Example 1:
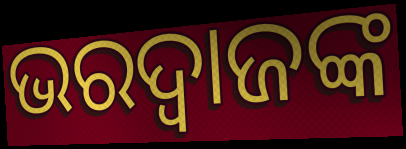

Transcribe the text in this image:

ଭରଦ୍ବାଜଙ୍କ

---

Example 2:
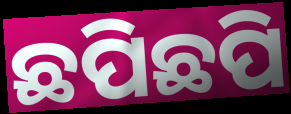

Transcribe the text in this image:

ଛପିଛପି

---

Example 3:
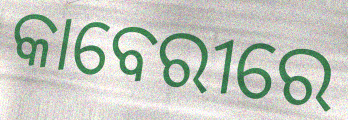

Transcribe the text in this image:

କାବେରୀରେ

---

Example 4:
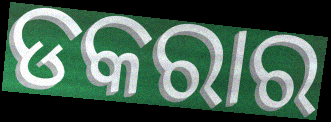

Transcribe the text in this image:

ଡକରାର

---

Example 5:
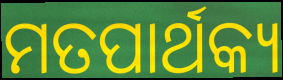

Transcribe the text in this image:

ମତପାର୍ଥକ୍ୟ